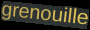
grenouille